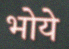
भोये